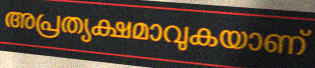
അപ്രത്യക്ഷമാവുകയാണ്